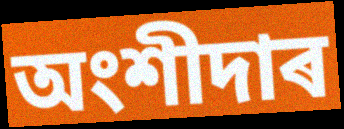
অংশীদাৰ